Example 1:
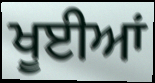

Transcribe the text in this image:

ਖੂਈਆਂ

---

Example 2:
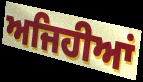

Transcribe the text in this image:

ਅਜਿਹੀਆਂ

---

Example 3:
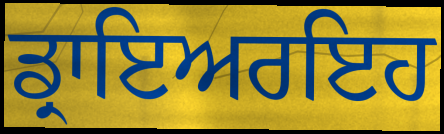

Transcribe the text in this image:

ਡ੍ਰਾਇਅਰਇਹ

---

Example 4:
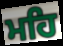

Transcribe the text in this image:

ਮਹਿ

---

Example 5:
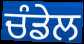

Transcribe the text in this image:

ਚੰਡੇਲ